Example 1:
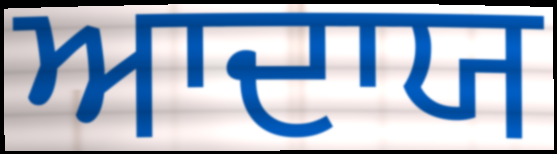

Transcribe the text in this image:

ਆਦਾਯ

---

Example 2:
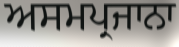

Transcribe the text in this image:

ਅਸਮਪ੍ਰਜਾਨਾ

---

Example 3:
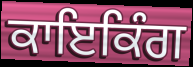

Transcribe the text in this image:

ਕਾਇਕਿੰਗ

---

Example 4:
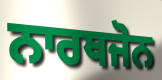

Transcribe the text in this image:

ਨਾਰਥਜੋਨ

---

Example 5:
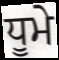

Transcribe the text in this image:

ਧੂਮੇ